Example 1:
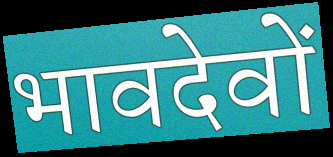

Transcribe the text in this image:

भावदेवों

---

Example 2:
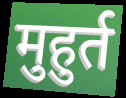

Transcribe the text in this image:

मुहुर्त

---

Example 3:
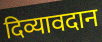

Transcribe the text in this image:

दिव्यावदान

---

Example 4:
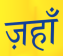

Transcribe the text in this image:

ज़हाँ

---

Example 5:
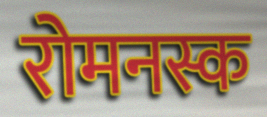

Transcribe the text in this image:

रोमनस्क